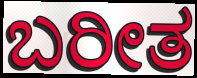
ಬರೀತ